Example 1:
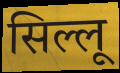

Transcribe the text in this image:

सिल्लू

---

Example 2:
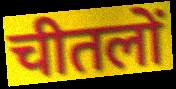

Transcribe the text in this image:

चीतलों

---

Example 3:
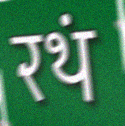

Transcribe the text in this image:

रथं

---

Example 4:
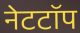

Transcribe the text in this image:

नेटटॉप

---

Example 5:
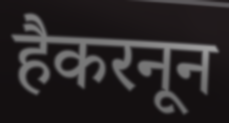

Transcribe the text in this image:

हैकरनून